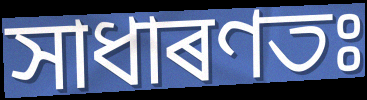
সাধাৰণতঃ